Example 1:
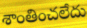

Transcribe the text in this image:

శాంతించలేదు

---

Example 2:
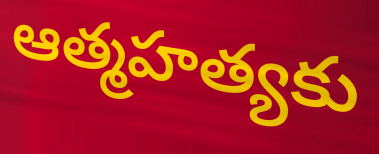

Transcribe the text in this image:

ఆత్మహత్యకు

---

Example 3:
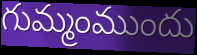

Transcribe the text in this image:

గుమ్మంముందు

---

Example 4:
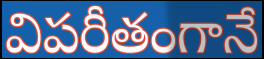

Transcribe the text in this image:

విపరీతంగానే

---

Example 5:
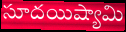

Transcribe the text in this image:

సూదయిష్యామి